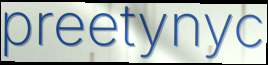
preetynyc